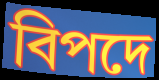
বিপদে